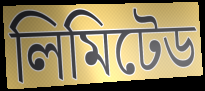
লিমিটেড